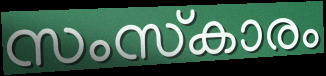
സംസ്‌കാരം